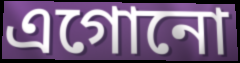
এগোনো